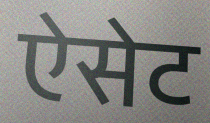
ऐसेट